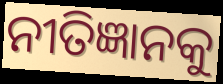
ନୀତିଜ୍ଞାନକୁ